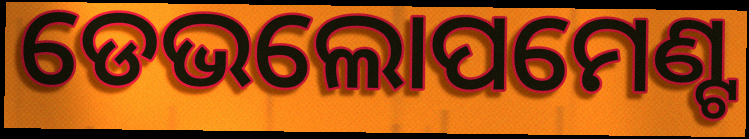
ଡେଭଲୋପମେଣ୍ଟ